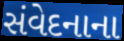
સંવેદનાના